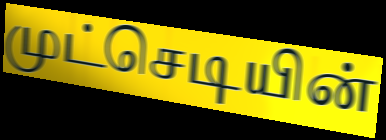
முட்செடியின்